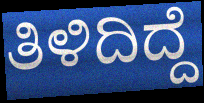
ತಿಳಿದಿದ್ದೆ